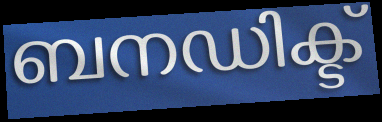
ബനഡിക്ട്